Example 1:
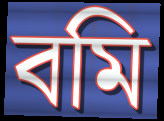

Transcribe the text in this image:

বমি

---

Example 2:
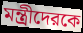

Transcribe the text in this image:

মন্ত্রীদেরকে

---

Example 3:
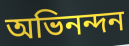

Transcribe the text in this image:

অভিনন্দন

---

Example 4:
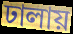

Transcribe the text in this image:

ঢালায়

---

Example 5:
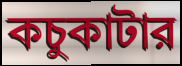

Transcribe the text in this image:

কচুকাটার